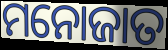
ମନୋଜାତ